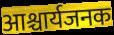
आश्चार्यजनक